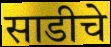
साडीचे